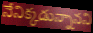
నేనిక్కడున్నానని